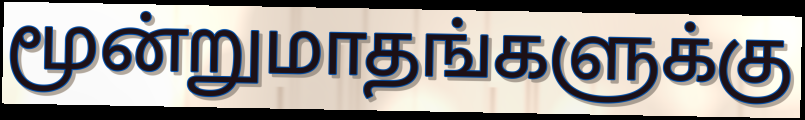
மூன்றுமாதங்களுக்கு